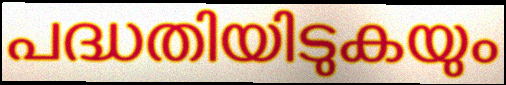
പദ്ധതിയിടുകയും